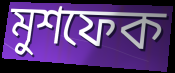
মুশফেক